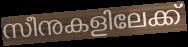
സീനുകളിലേക്ക്